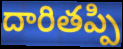
దారితప్పి